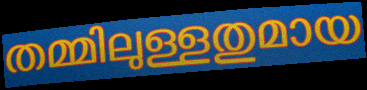
തമ്മിലുള്ളതുമായ